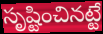
సృష్టించినట్టే